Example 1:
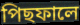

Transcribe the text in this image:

পিছফালে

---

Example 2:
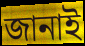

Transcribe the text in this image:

জানাই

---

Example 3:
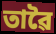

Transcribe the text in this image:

তাৱৈ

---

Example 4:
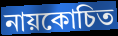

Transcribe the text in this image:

নায়কোচিত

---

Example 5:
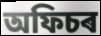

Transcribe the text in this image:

অফিচৰ